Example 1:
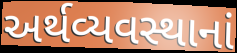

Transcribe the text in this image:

અર્થવ્યવસ્થાનાં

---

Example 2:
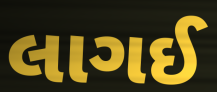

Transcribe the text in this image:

લાગઈ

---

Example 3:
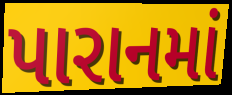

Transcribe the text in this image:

પારાનમાં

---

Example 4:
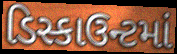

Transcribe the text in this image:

ડિસ્કાઉન્ટમાં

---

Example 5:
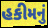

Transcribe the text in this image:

હકીમનું